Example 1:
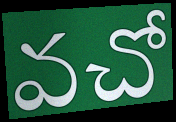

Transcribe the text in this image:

వచో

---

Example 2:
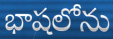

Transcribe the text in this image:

భాషలోను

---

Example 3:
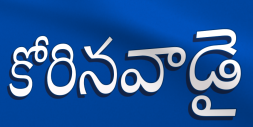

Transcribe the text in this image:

కోరినవాడై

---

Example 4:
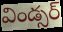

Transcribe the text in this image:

విండ్సర్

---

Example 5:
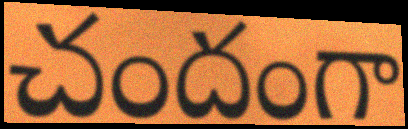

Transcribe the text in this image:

చందంగా